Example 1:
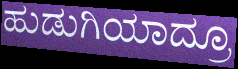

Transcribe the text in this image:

ಹುಡುಗಿಯಾದ್ರೂ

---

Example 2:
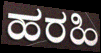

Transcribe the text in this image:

ಹರಹಿ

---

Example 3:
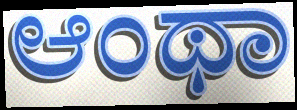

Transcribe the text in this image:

ಆಂಥಾ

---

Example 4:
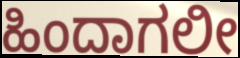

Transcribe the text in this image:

ಹಿಂದಾಗಲೀ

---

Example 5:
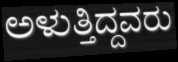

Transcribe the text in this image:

ಅಳುತ್ತಿದ್ದವರು